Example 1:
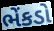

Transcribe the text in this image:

ભેંકડો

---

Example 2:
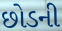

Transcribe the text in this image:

છોડની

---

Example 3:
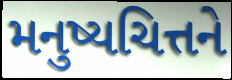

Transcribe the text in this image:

મનુષ્યચિત્તને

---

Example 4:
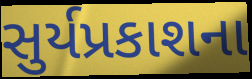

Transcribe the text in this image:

સુર્યપ્રકાશના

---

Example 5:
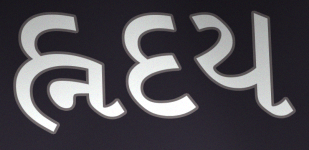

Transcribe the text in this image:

હ્નદય